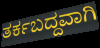
ತರ್ಕಬದ್ದವಾಗಿ